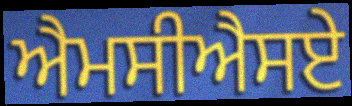
ਐਮਸੀਐਸਏ